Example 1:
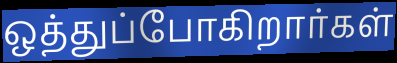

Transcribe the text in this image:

ஒத்துப்போகிறார்கள்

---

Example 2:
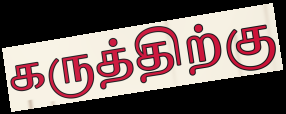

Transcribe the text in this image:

கருத்திற்கு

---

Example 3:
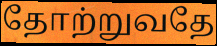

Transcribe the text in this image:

தோற்றுவதே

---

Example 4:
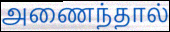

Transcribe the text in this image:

அணைந்தால்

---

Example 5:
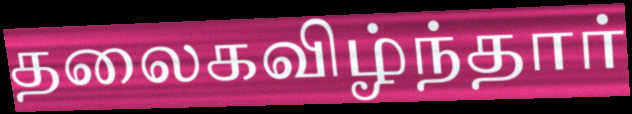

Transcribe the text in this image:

தலைகவிழ்ந்தார்